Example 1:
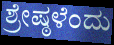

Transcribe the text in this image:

ಶ್ರೇಷ್ಠಳೆಂದು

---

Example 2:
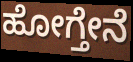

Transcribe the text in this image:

ಹೋಗ್ತೇನೆ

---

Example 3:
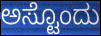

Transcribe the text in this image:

ಅಸ್ಟೊಂದು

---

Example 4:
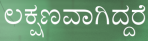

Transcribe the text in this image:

ಲಕ್ಷಣವಾಗಿದ್ದರೆ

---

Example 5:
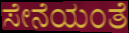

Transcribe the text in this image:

ಸೇನೆಯಂತೆ